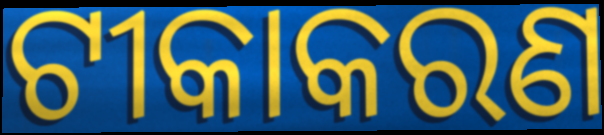
ଟୀକାକରଣ